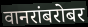
वानरांबरोबर